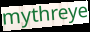
mythreye